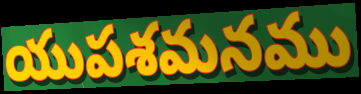
యుపశమనము